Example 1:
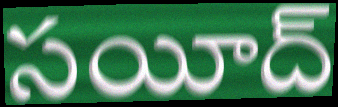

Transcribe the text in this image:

సయీద్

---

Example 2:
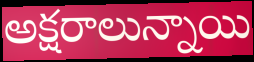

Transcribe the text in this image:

అక్షరాలున్నాయి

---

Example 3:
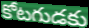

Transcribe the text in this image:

కోటగుడకు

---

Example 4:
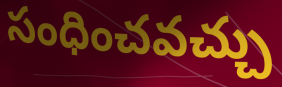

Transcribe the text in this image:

సంధించవచ్చు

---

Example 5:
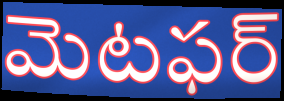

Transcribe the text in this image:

మెటఫర్